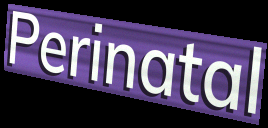
Perinatal